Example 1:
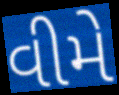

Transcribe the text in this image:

વીમે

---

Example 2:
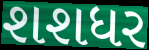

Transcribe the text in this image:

શશધર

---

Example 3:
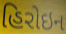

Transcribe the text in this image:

હિરોઇન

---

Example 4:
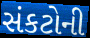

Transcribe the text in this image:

સંકટોની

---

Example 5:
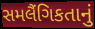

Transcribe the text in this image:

સમલૈંગિકતાનું